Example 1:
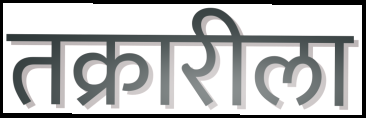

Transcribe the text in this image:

तक्रारीला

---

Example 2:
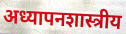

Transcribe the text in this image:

अध्यापनशास्त्रीय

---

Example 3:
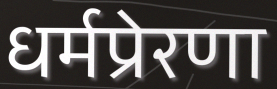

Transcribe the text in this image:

धर्मप्रेरणा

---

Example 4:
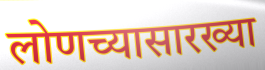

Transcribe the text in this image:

लोणच्यासारख्या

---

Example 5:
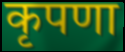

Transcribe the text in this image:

कृपणा